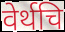
वेर्थचि